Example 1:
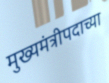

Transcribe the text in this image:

मुख्यमंत्रीपदाच्या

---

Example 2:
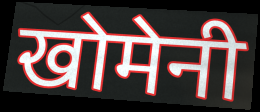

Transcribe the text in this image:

खोमेनी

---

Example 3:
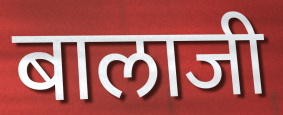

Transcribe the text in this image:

बालाजी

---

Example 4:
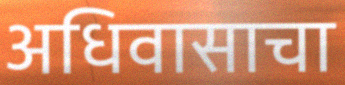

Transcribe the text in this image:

अधिवासाचा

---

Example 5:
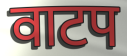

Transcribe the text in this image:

वाटप